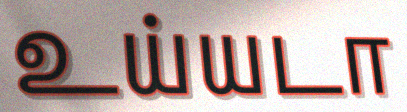
உய்யடா